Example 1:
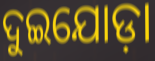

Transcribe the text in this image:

ଦୁଇଯୋଡ଼ା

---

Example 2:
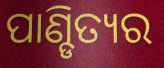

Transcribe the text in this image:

ପାଣ୍ଡିତ୍ୟର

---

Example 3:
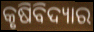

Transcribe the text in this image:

କୃଷିବିଦ୍ୟାର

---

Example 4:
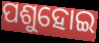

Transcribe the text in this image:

ପଶୁହୋଇ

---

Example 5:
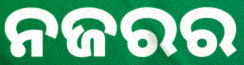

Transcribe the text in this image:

ନଜରର